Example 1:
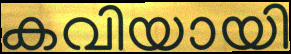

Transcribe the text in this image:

കവിയായി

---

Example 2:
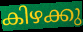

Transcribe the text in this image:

കിഴക്കു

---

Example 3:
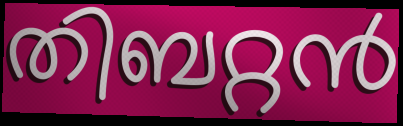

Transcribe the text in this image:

തിബറ്റൻ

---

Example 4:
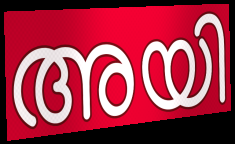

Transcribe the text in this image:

അയി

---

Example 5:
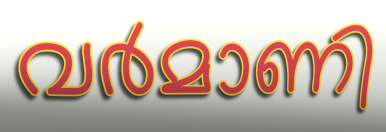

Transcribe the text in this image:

വർമാണി